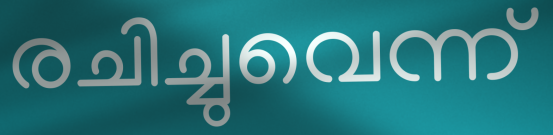
രചിച്ചുവെന്ന്